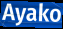
Ayako